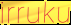
irruku